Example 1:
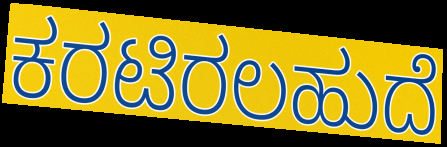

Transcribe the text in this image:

ಕರಟಿರಲಹುದೆ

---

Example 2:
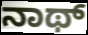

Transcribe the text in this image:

ನಾಥ್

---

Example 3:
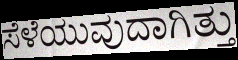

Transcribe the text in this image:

ಸೆಳೆಯುವುದಾಗಿತ್ತು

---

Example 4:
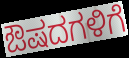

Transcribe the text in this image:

ಔಷದಗಳಿಗೆ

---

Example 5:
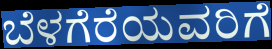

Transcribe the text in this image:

ಬೆಳಗೆರೆಯವರಿಗೆ